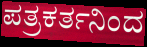
ಪತ್ರಕರ್ತನಿಂದ